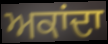
ਅਕਾਂਦਾ